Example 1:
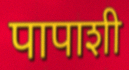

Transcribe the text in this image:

पापाशी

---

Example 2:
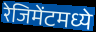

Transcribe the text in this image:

रेजिमेंटमध्ये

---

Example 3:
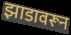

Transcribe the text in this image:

झाडावरून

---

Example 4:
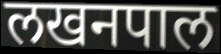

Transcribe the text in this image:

लखनपाल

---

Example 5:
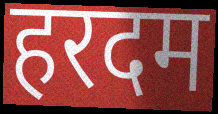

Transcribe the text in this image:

हरदम